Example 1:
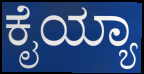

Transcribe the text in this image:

ಕೈಯ್ಯಾ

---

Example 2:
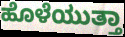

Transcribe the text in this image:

ಹೊಳೆಯುತ್ತಾ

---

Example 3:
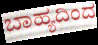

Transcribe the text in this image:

ಬಾಹ್ಯದಿಂದ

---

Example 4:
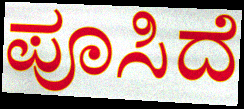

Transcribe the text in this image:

ಪೂಸಿದೆ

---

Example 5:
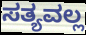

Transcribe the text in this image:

ಸತ್ಯವಲ್ಲ